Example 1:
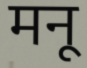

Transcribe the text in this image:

मनू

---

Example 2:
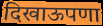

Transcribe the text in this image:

दिखाऊपणा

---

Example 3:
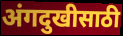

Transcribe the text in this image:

अंगदुखीसाठी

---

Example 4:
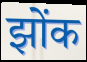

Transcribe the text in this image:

झोंक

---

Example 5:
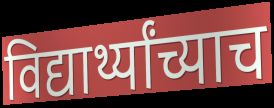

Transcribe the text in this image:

विद्यार्थ्यांच्याच